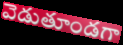
వెడుతూండగా